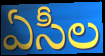
ఏసీల